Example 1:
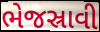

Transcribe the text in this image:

ભેજસ્રાવી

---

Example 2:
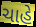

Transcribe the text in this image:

ચાહે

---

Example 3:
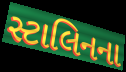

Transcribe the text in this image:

સ્ટાલિનના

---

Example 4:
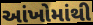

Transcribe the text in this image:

આંખોમાંથી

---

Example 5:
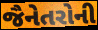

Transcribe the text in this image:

જૈનેતરોની